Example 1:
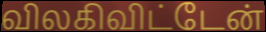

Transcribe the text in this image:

விலகிவிட்டேன்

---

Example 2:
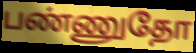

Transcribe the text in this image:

பண்ணுதோ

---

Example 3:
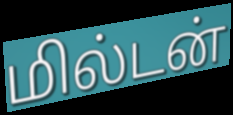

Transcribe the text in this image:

மில்டன்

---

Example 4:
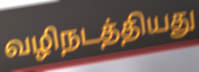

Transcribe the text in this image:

வழிநடத்தியது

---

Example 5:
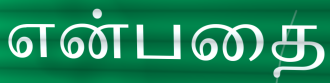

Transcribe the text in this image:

என்பதை